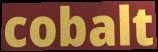
cobalt